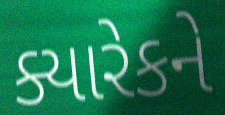
ક્યારેકને